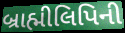
બ્રાહ્મીલિપિની